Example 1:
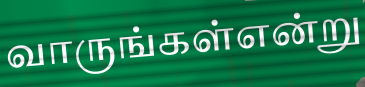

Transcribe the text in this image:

வாருங்கள்என்று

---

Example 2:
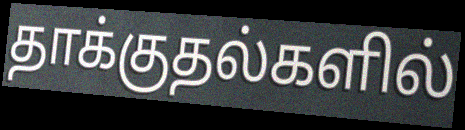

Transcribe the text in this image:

தாக்குதல்களில்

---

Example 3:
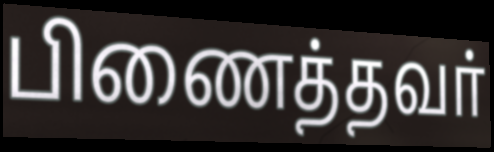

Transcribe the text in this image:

பிணைத்தவர்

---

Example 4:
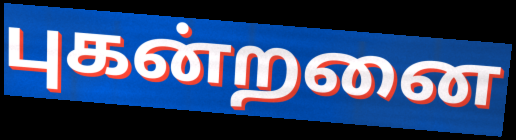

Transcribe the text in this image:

புகன்றனை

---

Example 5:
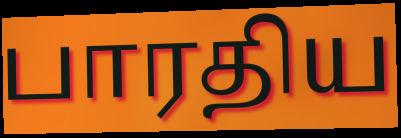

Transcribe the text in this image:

பாரதிய